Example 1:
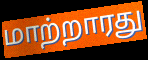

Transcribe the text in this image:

மாற்றாரது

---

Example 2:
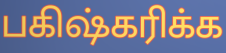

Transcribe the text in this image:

பகிஷ்கரிக்க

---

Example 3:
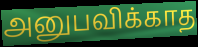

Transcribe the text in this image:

அனுபவிக்காத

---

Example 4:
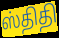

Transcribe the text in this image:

ஸ்திதி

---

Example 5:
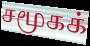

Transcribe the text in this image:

சமூகக்